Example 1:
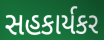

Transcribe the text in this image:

સહકાર્યકર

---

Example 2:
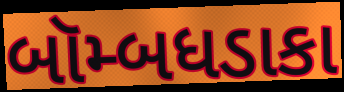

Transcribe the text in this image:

બૉમ્બધડાકા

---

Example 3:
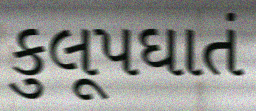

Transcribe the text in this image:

કુલૂપઘાતં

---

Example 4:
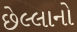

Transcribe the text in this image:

છેલ્લાનો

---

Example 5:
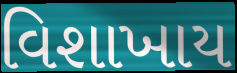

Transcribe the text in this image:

વિશાખાય